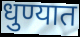
धुण्यात